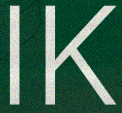
IK